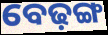
ବେଢ଼ଙ୍ଗ